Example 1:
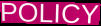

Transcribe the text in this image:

POLICY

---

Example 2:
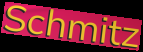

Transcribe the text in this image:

Schmitz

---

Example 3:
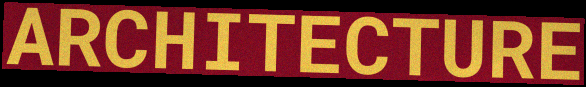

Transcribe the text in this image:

ARCHITECTURE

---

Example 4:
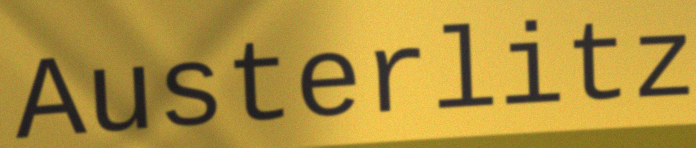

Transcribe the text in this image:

Austerlitz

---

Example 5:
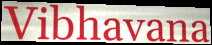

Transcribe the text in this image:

Vibhavana